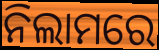
ନିଲାମରେ